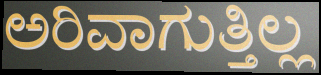
ಅರಿವಾಗುತ್ತಿಲ್ಲ